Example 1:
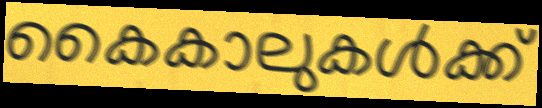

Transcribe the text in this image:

കൈകാലുകൾക്ക്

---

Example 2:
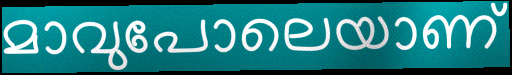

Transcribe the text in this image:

മാവുപോലെയാണ്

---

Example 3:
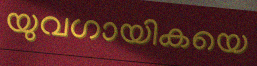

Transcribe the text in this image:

യുവഗായികയെ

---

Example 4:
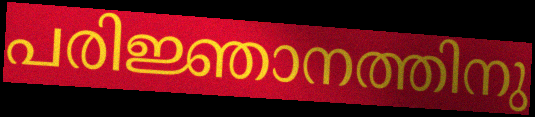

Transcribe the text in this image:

പരിജ്ഞാനത്തിനു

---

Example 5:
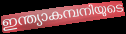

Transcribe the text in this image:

ഇന്ത്യാകമ്പനിയുടെ